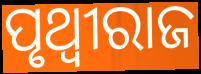
ପୃଥ୍ୱୀରାଜ